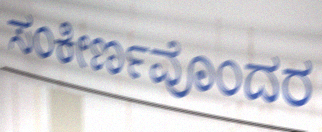
ಸಂಕೀರ್ಣವೊಂದರ